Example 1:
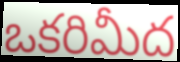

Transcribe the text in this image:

ఒకరిమీద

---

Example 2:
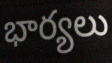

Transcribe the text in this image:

భార్యలు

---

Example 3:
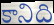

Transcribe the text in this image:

కానిది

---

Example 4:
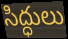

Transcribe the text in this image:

సిద్ధులు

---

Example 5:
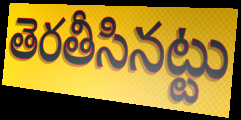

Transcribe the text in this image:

తెరతీసినట్టు